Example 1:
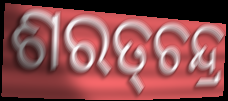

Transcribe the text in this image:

ଶରତ୍‌ଚନ୍ଦ୍ର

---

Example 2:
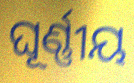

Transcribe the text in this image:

ଘୂର୍ଣ୍ଣୀୟ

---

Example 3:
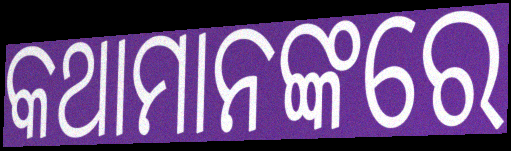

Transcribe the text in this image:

କଥାମାନଙ୍କରେ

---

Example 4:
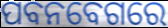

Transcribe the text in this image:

ପବନବେଗରେ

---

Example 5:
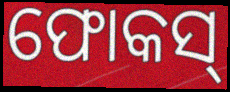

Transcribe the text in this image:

ଫୋକସ୍